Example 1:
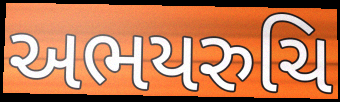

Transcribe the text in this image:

અભયરુચિ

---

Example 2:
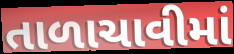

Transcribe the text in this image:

તાળાચાવીમાં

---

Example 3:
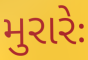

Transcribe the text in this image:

મુરારેઃ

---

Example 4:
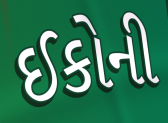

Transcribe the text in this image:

ઈકોની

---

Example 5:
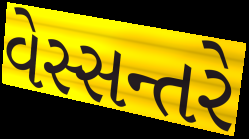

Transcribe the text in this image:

વેસ્સન્તરે